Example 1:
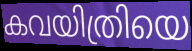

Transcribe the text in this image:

കവയിത്രിയെ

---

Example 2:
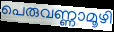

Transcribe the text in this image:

പെരുവണ്ണാമൂഴി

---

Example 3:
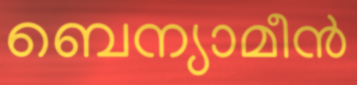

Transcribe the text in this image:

ബെന്യാമീൻ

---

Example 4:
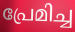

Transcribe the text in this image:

പ്രേമിച്ച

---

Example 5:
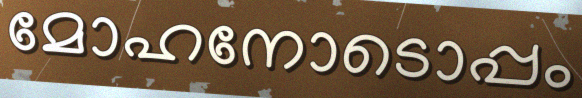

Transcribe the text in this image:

മോഹനോടൊപ്പം